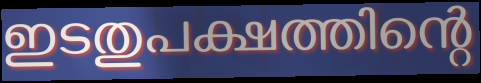
ഇടതുപക്ഷത്തിന്റെ